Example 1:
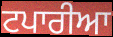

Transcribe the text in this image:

ਟਪਾਰੀਆ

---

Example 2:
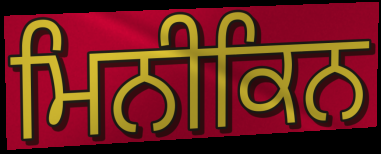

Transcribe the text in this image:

ਮਿਨੀਕਿਨ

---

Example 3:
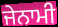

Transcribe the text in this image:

ਜੇਨਾਮੀ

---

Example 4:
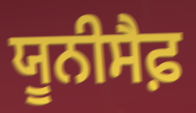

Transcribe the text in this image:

ਯੂਨੀਸੈਫ਼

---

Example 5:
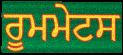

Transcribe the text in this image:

ਰੂਮਮੇਟਸ